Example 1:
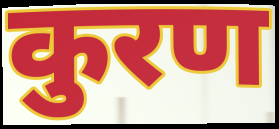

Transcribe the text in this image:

कुरण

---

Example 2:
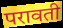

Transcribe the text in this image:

परावती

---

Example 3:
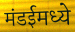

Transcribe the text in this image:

मंडईमध्ये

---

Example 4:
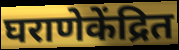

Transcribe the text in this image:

घराणेकेंद्रित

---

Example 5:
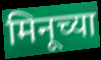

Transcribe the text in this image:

मिनूच्या